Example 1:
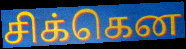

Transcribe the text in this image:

சிக்கென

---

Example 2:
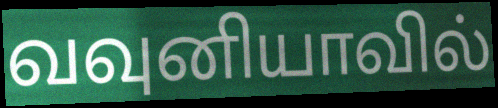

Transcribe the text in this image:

வவுனியாவில்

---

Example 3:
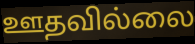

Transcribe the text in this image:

ஊதவில்லை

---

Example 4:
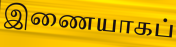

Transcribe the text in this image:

இணையாகப்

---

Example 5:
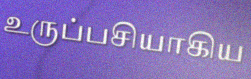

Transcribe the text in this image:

உருப்பசியாகிய